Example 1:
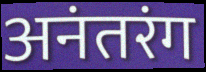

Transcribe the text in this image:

अनंतरंग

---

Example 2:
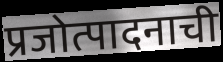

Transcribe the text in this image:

प्रजोत्पादनाची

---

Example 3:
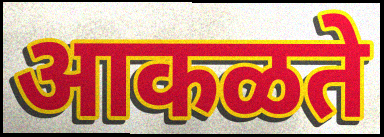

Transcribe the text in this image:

आकळते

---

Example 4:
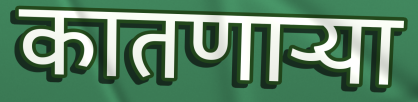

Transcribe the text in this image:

कातणाऱ्या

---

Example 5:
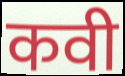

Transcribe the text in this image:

कवी